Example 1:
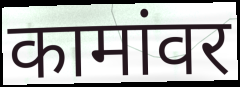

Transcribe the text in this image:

कामांवर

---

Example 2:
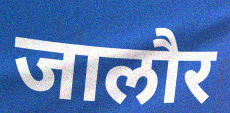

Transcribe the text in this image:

जालौर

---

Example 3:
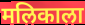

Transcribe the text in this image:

मलिकाला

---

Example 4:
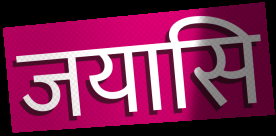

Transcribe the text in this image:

जयासि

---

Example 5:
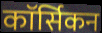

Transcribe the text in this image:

कॉर्सिकन